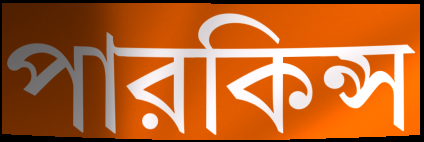
পারকিন্স